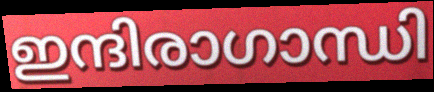
ഇന്ദിരാഗാന്ധി